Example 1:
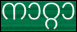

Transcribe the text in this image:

നാറ്റാ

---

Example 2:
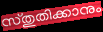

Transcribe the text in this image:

സ്തുതിക്കാനും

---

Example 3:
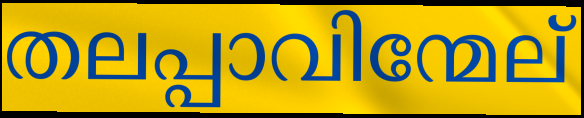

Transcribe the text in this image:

തലപ്പാവിന്മേല്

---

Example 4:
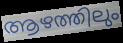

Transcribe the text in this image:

ആഴത്തിലും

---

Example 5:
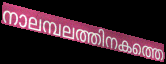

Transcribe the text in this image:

നാലമ്പലത്തിനകത്തെ